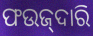
ଫଉଜ୍‌ଦାରି